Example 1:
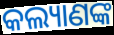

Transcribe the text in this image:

କଲ୍ୟାଣଙ୍କ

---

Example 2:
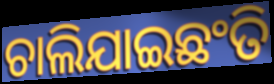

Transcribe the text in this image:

ଚାଲିଯାଇଛଂତି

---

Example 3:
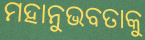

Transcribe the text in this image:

ମହାନୁଭବତାକୁ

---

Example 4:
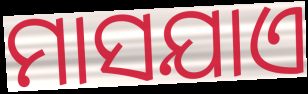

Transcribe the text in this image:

ମାସଯାଏ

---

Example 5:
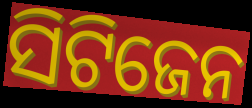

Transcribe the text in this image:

ସିଟିଜେନ